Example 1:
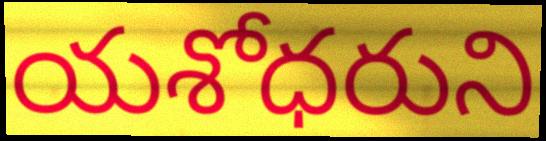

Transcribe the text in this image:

యశోధరుని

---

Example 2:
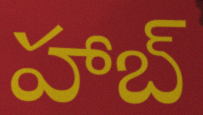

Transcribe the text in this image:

హాబ్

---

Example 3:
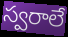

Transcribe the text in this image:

స్వరాలే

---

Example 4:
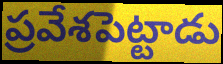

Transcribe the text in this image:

ప్రవేశపెట్టాడు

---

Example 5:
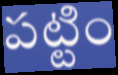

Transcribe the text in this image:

పట్టిం